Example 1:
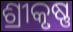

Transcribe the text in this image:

ଶ୍ରୀକୃଷ୍ଣ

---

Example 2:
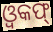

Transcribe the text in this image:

ଓ୍ୱକଫ୍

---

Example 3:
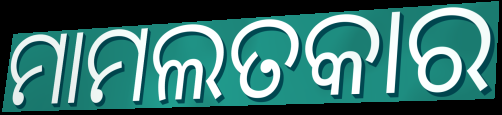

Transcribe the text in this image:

ମାମଲତକାର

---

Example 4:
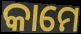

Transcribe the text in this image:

କାମେ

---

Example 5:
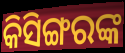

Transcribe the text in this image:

କିସିଙ୍ଗରଙ୍କ